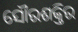
ସୌରଶକ୍ତିର